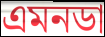
এমনডা